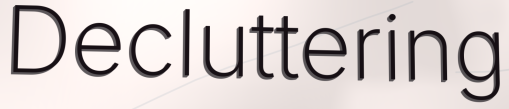
Decluttering